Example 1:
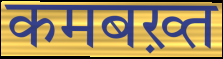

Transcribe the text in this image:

कमबख़्त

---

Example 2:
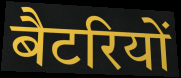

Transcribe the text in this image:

बैटरियों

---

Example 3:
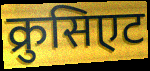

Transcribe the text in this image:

क्रुसिएट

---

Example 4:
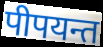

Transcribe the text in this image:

पीपयन्त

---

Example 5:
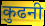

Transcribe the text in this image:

कुढनी